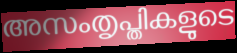
അസംതൃപ്തികളുടെ